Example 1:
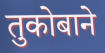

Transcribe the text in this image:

तुकोबाने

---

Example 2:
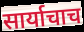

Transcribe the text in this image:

सार्याचाच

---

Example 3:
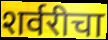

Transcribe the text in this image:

शर्वरीचा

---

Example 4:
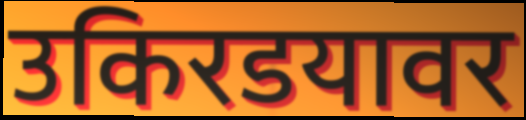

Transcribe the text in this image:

उकिरडयावर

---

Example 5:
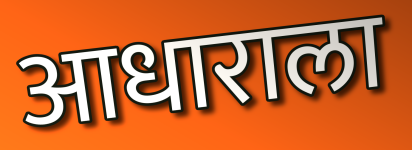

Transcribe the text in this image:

आधाराला